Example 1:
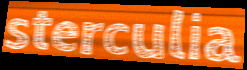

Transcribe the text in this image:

sterculia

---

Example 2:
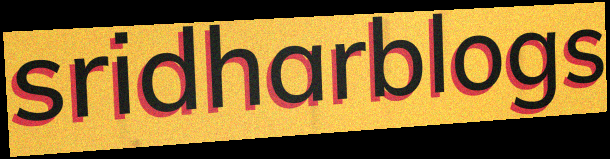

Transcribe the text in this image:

sridharblogs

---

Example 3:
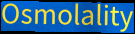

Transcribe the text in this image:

Osmolality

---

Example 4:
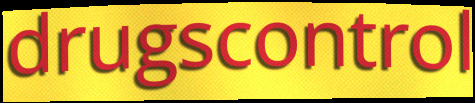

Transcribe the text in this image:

drugscontrol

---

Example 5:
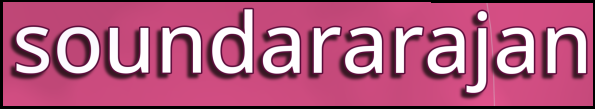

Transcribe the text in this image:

soundararajan